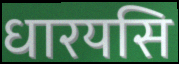
धारयसि